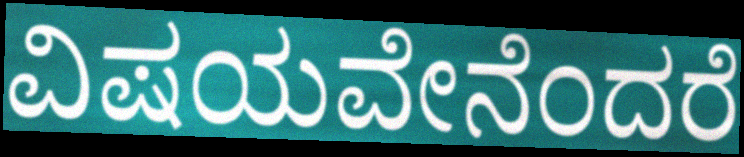
ವಿಷಯವೇನೆಂದರೆ